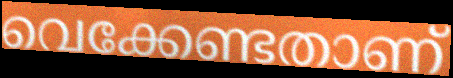
വെക്കേണ്ടതാണ്